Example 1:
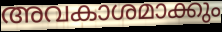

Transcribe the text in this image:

അവകാശമാക്കും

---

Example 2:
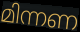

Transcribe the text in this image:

മിന്നണ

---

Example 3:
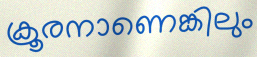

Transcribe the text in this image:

ക്രൂരനാണെങ്കിലും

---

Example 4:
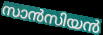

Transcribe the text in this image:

സാൻസിയൻ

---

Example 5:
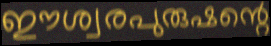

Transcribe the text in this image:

ഈശ്വരപുരുഷന്റെ